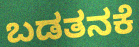
ಬಡತನಕೆ